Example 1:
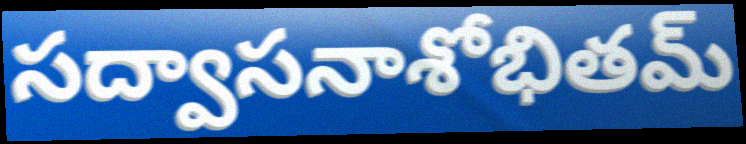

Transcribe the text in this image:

సద్వాసనాశోభితమ్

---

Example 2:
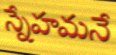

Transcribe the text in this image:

స్నేహమనే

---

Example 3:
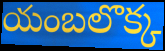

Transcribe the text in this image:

యంబలొక్క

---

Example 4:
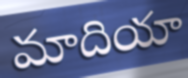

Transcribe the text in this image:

మాదియా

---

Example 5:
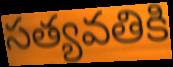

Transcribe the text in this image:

సత్యవతికి